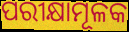
ପରୀକ୍ଷାମୂଳକ